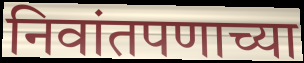
निवांतपणाच्या